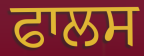
ਫਾਲਸ